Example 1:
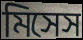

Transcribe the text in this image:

মিসেস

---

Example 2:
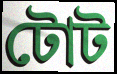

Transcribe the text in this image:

টোট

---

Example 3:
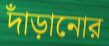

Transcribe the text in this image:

দাঁড়ানোর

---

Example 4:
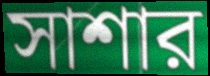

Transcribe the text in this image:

সাশার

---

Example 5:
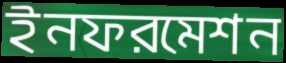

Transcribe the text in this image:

ইনফরমেশন